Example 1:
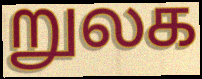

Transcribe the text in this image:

றுலக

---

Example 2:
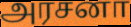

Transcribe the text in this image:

அரசனா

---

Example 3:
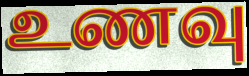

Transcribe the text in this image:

உணவு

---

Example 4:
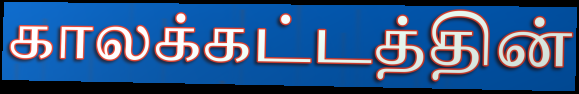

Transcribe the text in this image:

காலக்கட்டத்தின்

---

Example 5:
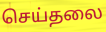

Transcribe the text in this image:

செய்தலை